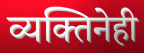
व्यक्तिनेही